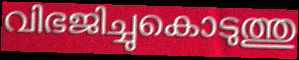
വിഭജിച്ചുകൊടുത്തു